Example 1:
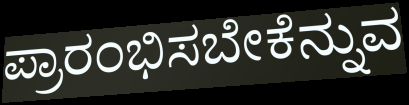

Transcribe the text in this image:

ಪ್ರಾರಂಭಿಸಬೇಕೆನ್ನುವ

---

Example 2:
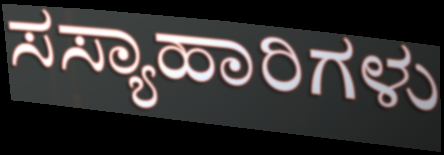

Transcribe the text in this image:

ಸಸ್ಯಾಹಾರಿಗಳು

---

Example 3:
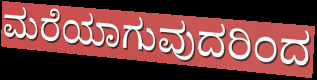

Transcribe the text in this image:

ಮರೆಯಾಗುವುದರಿಂದ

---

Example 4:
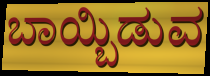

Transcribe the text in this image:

ಬಾಯ್ಬಿಡುವ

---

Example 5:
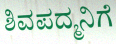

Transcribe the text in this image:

ಶಿವಪದ್ಮನಿಗೆ